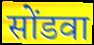
सोंडवा